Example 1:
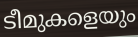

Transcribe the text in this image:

ടീമുകളെയും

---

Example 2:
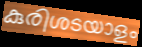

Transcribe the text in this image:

കുരിശടയാളം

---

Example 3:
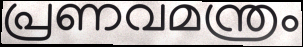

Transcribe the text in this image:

പ്രണവമന്ത്രം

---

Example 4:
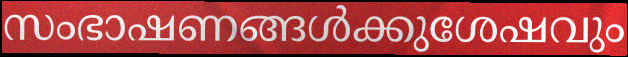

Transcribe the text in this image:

സംഭാഷണങ്ങൾക്കുശേഷവും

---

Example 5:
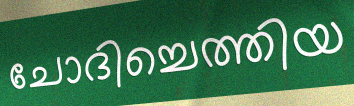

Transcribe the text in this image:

ചോദിച്ചെത്തിയ